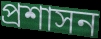
প্রশাসন